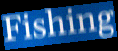
Fishing